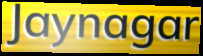
Jaynagar